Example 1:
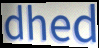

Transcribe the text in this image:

dhed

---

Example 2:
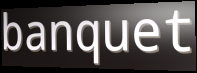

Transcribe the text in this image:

banquet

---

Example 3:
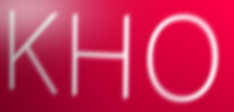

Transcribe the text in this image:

KHO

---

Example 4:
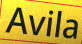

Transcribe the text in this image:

Avila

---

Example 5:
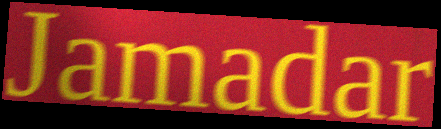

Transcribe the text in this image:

Jamadar